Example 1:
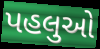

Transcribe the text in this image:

પહલુઓ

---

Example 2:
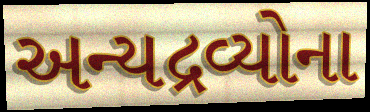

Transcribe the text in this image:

અન્યદ્રવ્યોના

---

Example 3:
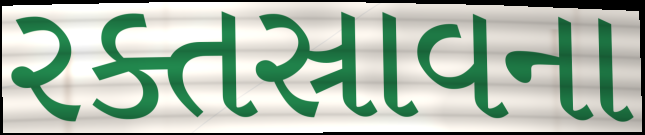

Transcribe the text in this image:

રક્તસ્રાવના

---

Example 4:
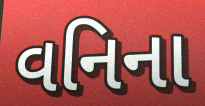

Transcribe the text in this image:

વનિના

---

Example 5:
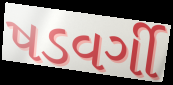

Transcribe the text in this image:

ષડવર્ગી